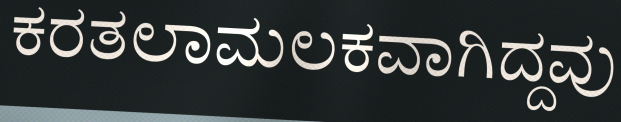
ಕರತಲಾಮಲಕವಾಗಿದ್ದವು